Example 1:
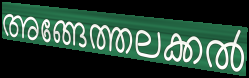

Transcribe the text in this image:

അങ്ങേത്തലക്കൽ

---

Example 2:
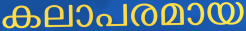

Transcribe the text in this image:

കലാപരമായ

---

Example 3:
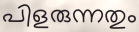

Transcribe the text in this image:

പിളരുന്നതും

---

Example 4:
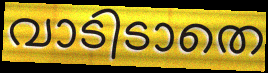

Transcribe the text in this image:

വാടിടാതെ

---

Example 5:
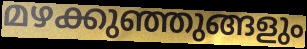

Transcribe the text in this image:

മഴക്കുഞ്ഞുങ്ങളും